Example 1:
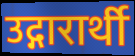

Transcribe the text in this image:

उद्गारार्थी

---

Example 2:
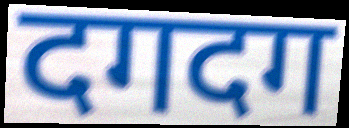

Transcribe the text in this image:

दगदग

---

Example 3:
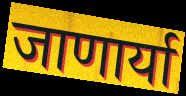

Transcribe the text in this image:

जाणार्या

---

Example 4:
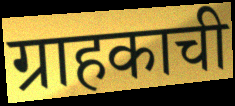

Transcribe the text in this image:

ग्राहकाची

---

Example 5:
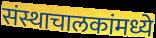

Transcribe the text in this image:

संस्थाचालकांमध्ये